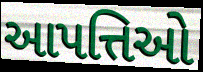
આપત્તિઓ